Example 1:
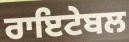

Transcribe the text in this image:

ਰਾਇਟੇਬਲ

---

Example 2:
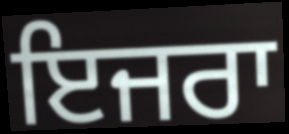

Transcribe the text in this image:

ਇਜਰਾ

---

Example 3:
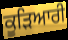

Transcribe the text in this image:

ਕੂੜਿਆਰੀ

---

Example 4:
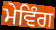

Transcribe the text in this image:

ਮੇਵਿੰਗ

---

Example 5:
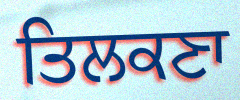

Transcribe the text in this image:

ਤਿਲਕਣਾ